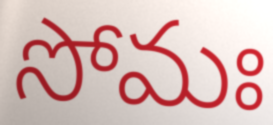
సోమః